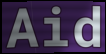
Aid